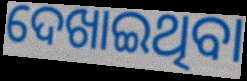
ଦେଖାଇଥିବା